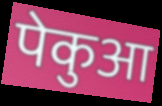
पेकुआ